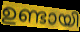
ഉണ്ടായി